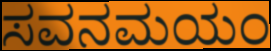
ಸವನಮಯಂ